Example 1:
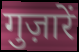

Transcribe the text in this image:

गुज़ारें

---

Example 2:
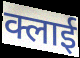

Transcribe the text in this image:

क्लाई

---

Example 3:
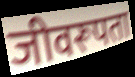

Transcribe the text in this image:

जीवरूपता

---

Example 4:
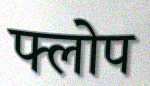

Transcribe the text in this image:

फ्लोप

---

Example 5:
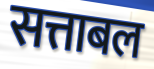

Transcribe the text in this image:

सत्ताबल